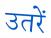
उतरें